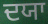
ਦਯਾ